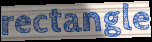
rectangle